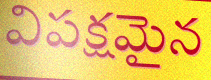
విపక్షమైన